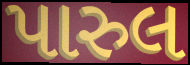
પારુલ